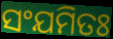
ସଂଯମିତଃ